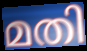
മതി